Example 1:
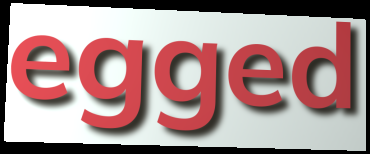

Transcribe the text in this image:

egged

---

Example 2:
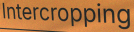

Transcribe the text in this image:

Intercropping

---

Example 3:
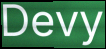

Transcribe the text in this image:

Devy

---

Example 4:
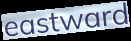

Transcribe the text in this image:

eastward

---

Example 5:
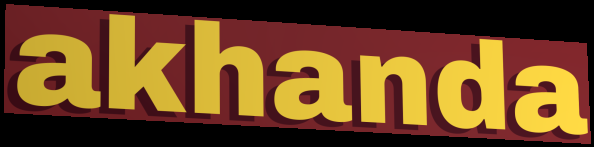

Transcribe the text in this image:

akhanda